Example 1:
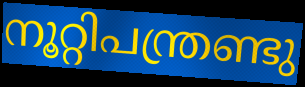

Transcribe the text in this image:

നൂറ്റിപന്ത്രണ്ടു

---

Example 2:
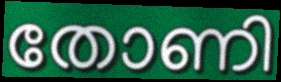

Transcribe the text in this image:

തോണി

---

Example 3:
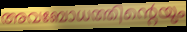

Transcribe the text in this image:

അവബോധത്തിന്റെയും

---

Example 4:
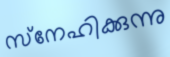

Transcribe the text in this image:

സ്‌നേഹിക്കുന്നു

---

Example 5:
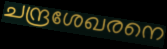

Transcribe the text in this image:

ചന്ദ്രശേഖരനെ